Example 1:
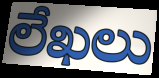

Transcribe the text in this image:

లేఖలు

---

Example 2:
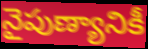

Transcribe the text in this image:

నైపుణ్యానికీ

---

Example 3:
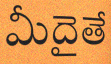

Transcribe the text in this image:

మీదైతే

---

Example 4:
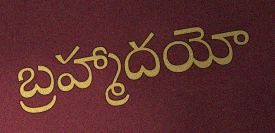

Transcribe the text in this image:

బ్రహ్మాదయో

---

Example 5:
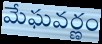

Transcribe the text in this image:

మేఘవర్ణం